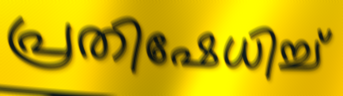
പ്രതിഷേധിച്ച്